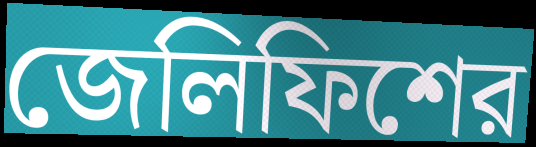
জেলিফিশের